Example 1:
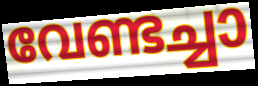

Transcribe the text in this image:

വേണ്ടച്ചാ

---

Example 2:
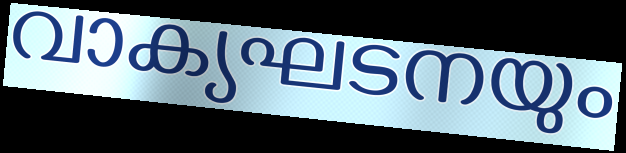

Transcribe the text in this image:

വാക്യഘടനയും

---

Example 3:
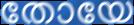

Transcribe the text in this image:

തോയേ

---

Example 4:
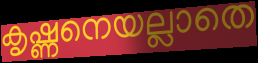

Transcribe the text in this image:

കൃഷ്ണനെയല്ലാതെ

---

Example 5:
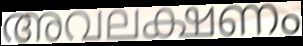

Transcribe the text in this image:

അവലക്ഷണം